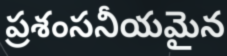
ప్రశంసనీయమైన